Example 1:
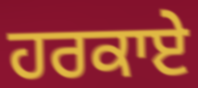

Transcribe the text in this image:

ਹਰਕਾਏ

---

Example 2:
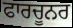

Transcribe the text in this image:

ਫਾਰਚੂਨਰ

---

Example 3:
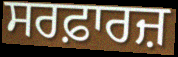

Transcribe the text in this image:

ਸਰਫ਼ਾਰਜ਼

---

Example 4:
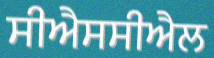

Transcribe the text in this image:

ਸੀਐਸਸੀਐਲ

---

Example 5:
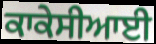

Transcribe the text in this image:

ਕਾਕੇਸੀਆਈ